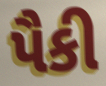
પૈકી